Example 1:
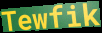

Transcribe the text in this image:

Tewfik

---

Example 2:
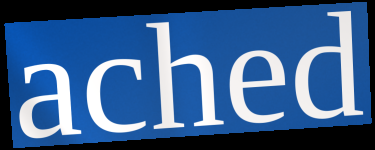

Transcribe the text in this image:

ached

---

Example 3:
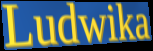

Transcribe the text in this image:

Ludwika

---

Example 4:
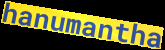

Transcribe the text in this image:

hanumantha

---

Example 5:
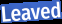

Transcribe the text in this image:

Leaved